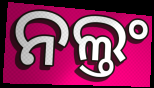
ନଲ୍ତଂ